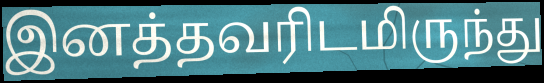
இனத்தவரிடமிருந்து